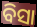
ବିସା